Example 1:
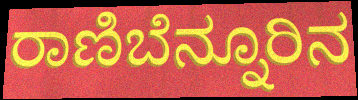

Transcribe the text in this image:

ರಾಣಿಬೆನ್ನೂರಿನ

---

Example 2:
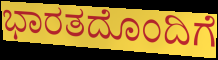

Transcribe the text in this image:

ಭಾರತದೊಂದಿಗೆ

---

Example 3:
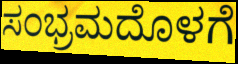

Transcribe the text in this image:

ಸಂಭ್ರಮದೊಳಗೆ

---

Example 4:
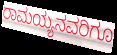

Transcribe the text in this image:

ರಾಮಯ್ಯನವರಿಗೂ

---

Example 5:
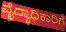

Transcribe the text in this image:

ವೈದ್ಯಾಧಿಕಾರಿಗೆ